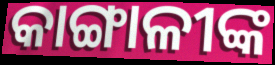
କାଙ୍ଗାଳୀଙ୍କ